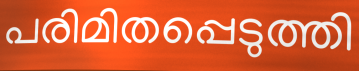
പരിമിതപ്പെടുത്തി